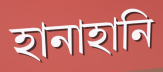
হানাহানি